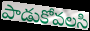
పాడుకోవలసి